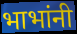
भाभांनी